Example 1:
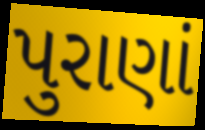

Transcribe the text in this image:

પુરાણાં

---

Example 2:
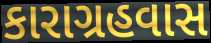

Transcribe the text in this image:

કારાગ્રહવાસ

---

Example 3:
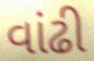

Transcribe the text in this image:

વાંઢી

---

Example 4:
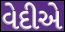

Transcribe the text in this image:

વેદીએ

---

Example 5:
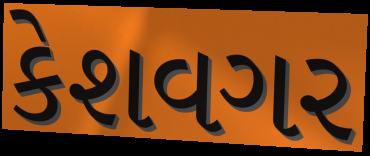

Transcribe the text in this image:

કેશવગર